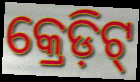
କ୍ରେଡ଼ିଟ୍